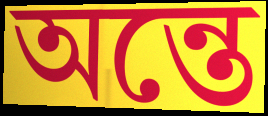
অন্তে